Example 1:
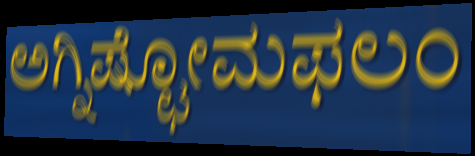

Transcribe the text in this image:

ಅಗ್ನಿಷ್ಟೋಮಫಲಂ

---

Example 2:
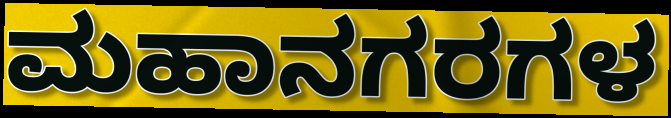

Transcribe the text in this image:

ಮಹಾನಗರಗಳ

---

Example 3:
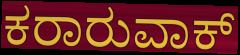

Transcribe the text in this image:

ಕರಾರುವಾಕ್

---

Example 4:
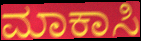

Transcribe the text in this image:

ಮಾಕಾಸಿ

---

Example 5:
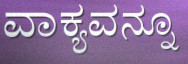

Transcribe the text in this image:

ವಾಕ್ಯವನ್ನೂ